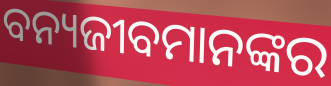
ବନ୍ୟଜୀବମାନଙ୍କର